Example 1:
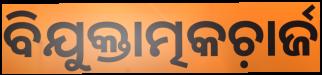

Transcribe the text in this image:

ବିଯୁକ୍ତାତ୍ମକଚ଼ାର୍ଜ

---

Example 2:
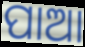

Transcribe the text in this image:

ପାଆ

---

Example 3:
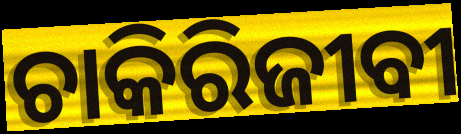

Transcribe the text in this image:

ଚାକିରିଜୀବୀ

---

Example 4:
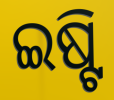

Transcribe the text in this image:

ଇଷ୍ଟି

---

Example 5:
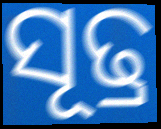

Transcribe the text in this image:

ସୂଢ୍ର